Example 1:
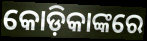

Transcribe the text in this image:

କୋଡ଼ିକାଙ୍କରେ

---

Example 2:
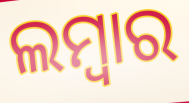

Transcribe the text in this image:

ଲମ୍ୱାର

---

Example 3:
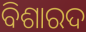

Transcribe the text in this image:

ବିଶାରଦ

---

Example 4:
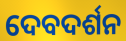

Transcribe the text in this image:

ଦେବଦର୍ଶନ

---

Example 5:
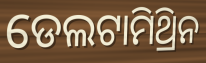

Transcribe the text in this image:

ଡେଲଟାମିଥ୍ରିନ